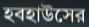
হবহাউসের